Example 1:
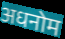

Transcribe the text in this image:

अधनोम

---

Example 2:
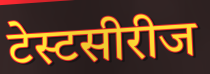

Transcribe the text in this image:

टेस्टसीरीज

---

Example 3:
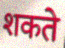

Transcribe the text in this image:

शकते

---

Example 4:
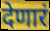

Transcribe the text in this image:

देणारं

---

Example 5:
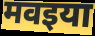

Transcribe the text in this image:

मवइया